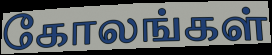
கோலங்கள்